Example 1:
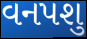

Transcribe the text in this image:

વનપશુ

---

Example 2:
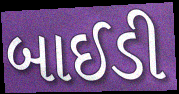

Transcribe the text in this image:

બાઈડી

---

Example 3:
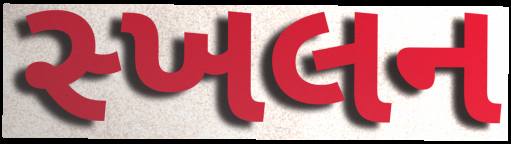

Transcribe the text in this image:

સ્ખલન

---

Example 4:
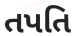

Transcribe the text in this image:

તપતિ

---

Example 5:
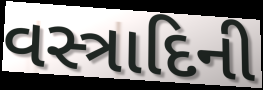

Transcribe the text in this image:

વસ્ત્રાદિની